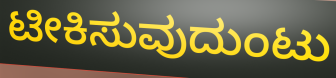
ಟೀಕಿಸುವುದುಂಟು